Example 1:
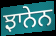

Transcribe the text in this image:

ਝਾਨੇਨ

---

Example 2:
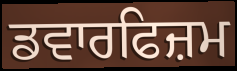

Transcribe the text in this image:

ਡਵਾਰਫਿਜ਼ਮ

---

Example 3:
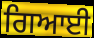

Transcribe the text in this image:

ਗਿਆਈ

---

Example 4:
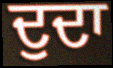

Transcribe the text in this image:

ਦੁਦਾ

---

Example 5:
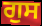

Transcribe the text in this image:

ਗੁਸ